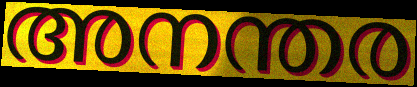
അനന്തര